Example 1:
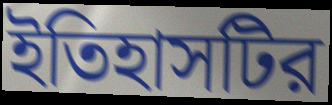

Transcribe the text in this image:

ইতিহাসটির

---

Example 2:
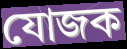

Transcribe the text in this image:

যোজক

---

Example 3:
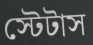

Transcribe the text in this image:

স্টেটাস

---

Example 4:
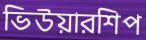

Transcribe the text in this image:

ভিউয়ারশিপ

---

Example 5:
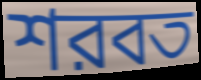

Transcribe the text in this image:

শরবত